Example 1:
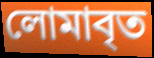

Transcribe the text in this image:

লোমাবৃত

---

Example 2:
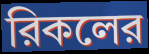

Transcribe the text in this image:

রিকলের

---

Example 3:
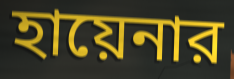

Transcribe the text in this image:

হায়েনার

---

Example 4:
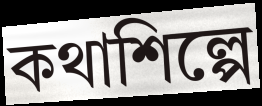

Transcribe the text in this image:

কথাশিল্পে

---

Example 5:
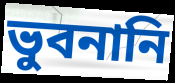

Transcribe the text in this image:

ভুবনানি